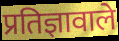
प्रतिज्ञावाले